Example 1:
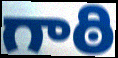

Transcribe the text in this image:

గాఠి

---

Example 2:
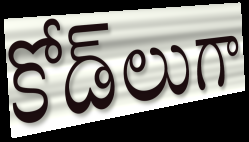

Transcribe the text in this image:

కోడ్‌లుగా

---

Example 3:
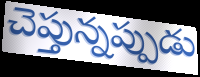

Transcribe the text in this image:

చెప్తున్నప్పుడు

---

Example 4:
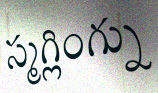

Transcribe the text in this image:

స్మగ్లింగ్ను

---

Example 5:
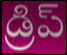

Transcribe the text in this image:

డ్రిప్